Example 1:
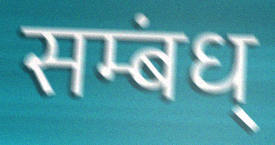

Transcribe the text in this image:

सम्बंध्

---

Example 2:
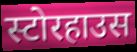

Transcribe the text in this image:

स्टोरहाउस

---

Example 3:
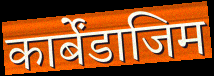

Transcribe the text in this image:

कार्बेंडाजिम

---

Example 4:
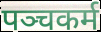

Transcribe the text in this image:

पञ्चकर्म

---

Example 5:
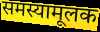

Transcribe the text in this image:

समस्यामूलक